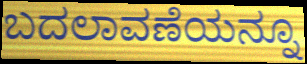
ಬದಲಾವಣೆಯನ್ನೂ